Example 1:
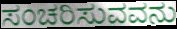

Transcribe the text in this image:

ಸಂಚರಿಸುವವನು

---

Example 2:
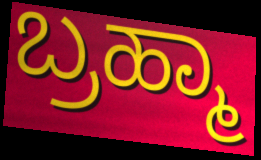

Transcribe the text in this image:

ಬ್ರಹ್ಮಾ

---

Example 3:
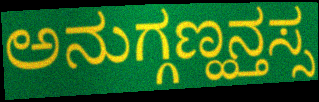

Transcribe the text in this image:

ಅನುಗ್ಗಣ್ಹನ್ತಸ್ಸ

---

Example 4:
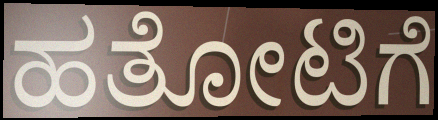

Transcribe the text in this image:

ಹತೋಟಿಗೆ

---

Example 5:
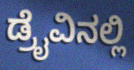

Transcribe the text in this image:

ಡ್ರೈವಿನಲ್ಲಿ